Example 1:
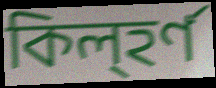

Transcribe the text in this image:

কিল্‌হর্ণ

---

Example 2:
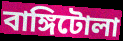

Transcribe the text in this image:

বাঙ্গিটোলা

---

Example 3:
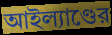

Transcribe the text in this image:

আইল্যাণ্ডের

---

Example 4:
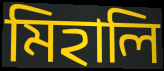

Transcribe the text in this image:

মিহালি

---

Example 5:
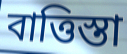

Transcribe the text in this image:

বাত্তিস্তা